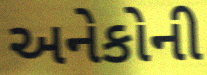
અનેકોની